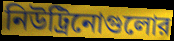
নিউট্রিনোগুলোর